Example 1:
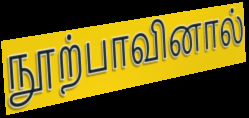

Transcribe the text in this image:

நூற்பாவினால்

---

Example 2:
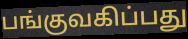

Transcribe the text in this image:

பங்குவகிப்பது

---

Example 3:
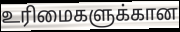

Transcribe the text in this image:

உரிமைகளுக்கான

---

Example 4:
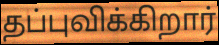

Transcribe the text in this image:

தப்புவிக்கிறார்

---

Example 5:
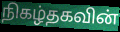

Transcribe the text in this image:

நிகழ்தகவின்